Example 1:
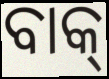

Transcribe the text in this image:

ବାକ୍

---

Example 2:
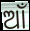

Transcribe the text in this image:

ଆଁ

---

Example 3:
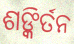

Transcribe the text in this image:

ଶଙ୍କିର୍ତନ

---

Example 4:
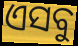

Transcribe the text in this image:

ଏସବୁ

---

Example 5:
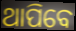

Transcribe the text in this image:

ଥାପିବେ